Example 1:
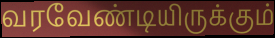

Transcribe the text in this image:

வரவேண்டியிருக்கும்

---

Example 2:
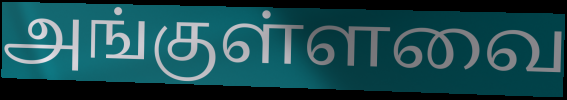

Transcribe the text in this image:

அங்குள்ளவை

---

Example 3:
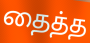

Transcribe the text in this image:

தைத்த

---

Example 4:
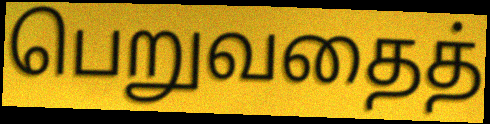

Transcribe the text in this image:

பெறுவதைத்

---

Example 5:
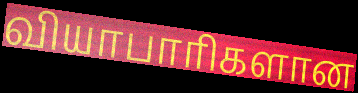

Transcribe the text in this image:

வியாபாரிகளான